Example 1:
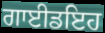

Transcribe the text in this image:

ਗਾਈਡਇਹ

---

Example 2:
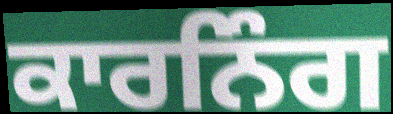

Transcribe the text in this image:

ਕਾਰਨਿੰਗ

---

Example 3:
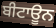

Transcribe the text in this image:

ਬੀਟਾਊਨ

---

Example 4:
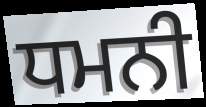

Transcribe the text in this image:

ਧਮਨੀ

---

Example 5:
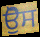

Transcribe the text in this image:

ਉੋਸ